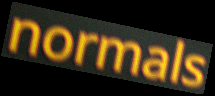
normals